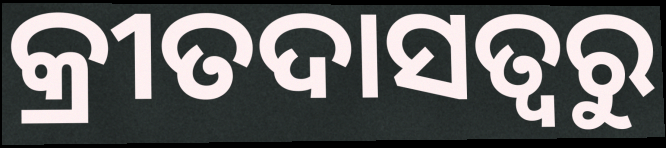
କ୍ରୀତଦାସତ୍ୱରୁ